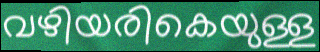
വഴിയരികെയുള്ള